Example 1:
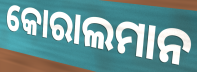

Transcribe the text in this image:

କୋରାଲମାନ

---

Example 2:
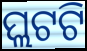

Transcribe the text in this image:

ପ୍ଲଟଟି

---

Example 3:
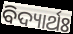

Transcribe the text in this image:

ବିଦ୍ୟାର୍ଥଃ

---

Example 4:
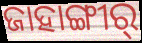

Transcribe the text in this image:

ଜାହାଙ୍ଗୀର୍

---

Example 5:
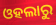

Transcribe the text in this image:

ଓହଲାରୁ